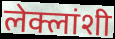
लेक्लांशी